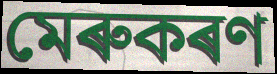
মেৰুকৰণ